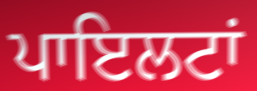
ਪਾਇਲਟਾਂ